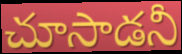
చూసాడనీ